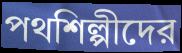
পথশিল্পীদের